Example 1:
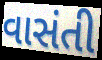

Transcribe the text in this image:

વાસંતી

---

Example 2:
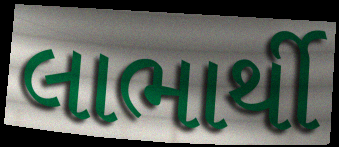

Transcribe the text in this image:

લાભાર્થી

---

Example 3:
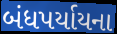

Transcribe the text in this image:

બંધપર્યાયના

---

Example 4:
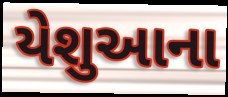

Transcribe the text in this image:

યેશુઆના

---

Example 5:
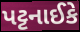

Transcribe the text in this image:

પટ્ટનાઈકે